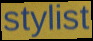
stylist